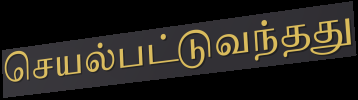
செயல்பட்டுவந்தது